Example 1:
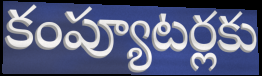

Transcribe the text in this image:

కంప్యూటర్లకు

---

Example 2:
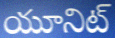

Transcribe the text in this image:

యూనిట్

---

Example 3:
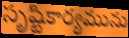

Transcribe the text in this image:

సృష్టికార్యమును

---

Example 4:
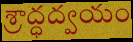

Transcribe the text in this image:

శ్రాద్ధద్వయం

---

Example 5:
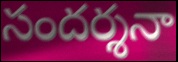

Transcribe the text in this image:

సందర్శనా